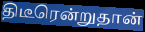
திடீரென்றுதான்